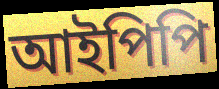
আইপিপি